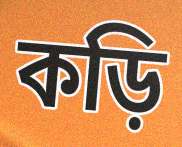
কড়ি